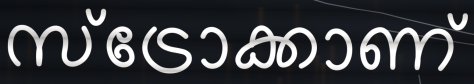
സ്ട്രോക്കാണ്